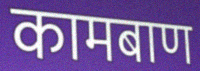
कामबाण